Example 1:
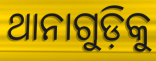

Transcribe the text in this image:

ଥାନାଗୁଡ଼ିକୁ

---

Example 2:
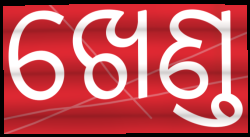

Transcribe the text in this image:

ଖେଣ୍ଡ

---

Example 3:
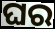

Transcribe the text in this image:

ଘର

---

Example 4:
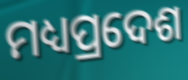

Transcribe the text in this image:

ମଧ୍ୟପ୍ରଦେଶ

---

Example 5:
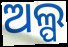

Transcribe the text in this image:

ଅଲ୍ପ